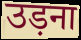
उड़ना